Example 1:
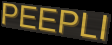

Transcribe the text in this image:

PEEPLI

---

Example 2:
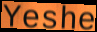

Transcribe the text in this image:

Yeshe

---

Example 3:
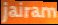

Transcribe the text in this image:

jairam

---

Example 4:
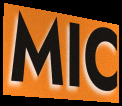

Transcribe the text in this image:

MIC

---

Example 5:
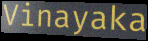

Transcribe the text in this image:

Vinayaka